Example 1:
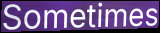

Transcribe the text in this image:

Sometimes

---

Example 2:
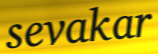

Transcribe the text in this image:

sevakar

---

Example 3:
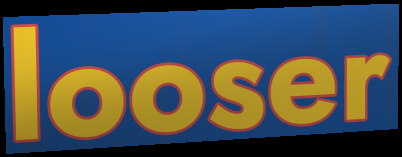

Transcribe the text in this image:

looser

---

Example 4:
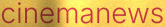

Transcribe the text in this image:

cinemanews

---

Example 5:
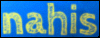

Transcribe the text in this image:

nahis